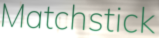
Matchstick